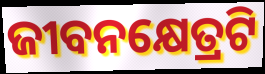
ଜୀବନକ୍ଷେତ୍ରଟି